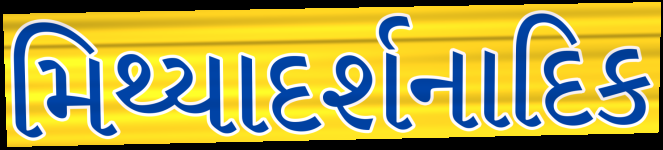
મિથ્યાદર્શનાદિક